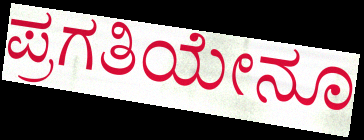
ಪ್ರಗತಿಯೇನೂ